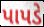
પાપડે